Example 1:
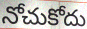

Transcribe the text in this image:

నోచుకోదు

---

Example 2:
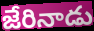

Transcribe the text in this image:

జేరినాడు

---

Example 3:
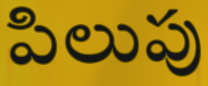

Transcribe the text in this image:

పిలుపు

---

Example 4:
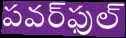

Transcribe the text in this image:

పవర్‌ఫుల్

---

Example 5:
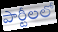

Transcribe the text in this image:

పార్టీలలో